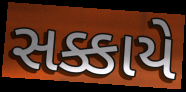
સક્કાયે